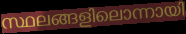
സ്ഥലങ്ങളിലൊന്നായി